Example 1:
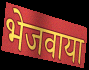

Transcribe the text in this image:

भेजवाया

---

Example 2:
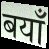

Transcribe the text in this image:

बयाँ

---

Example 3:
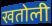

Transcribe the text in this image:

खतोली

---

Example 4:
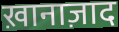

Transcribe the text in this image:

ख़ानाज़ाद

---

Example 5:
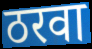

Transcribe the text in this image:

ठरवा